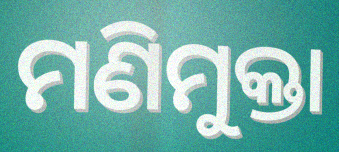
ମଣିମୁକ୍ତା